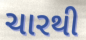
ચારથી